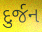
દુર્જન